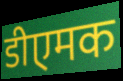
डीएमक